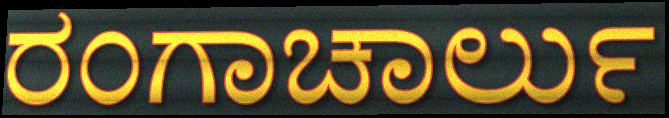
ರಂಗಾಚಾರ್ಲು